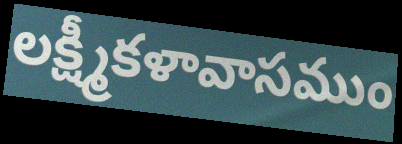
లక్ష్మీకళావాసముం